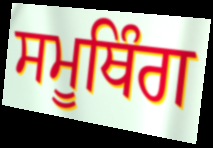
ਸਮੂਥਿੰਗ